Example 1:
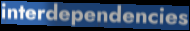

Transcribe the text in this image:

interdependencies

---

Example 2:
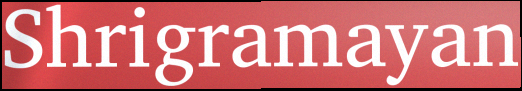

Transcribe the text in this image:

Shrigramayan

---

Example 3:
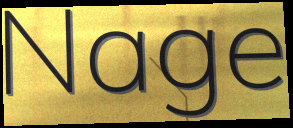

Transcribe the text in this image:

Nage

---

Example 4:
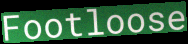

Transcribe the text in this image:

Footloose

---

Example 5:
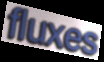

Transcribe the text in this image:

fluxes